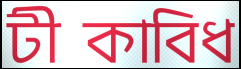
টীকাবিধ